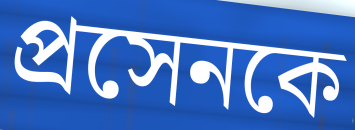
প্রসেনকে